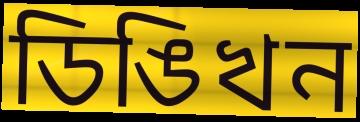
ডিঙিখন